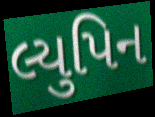
લ્યુપિન